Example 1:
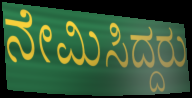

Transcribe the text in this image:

ನೇಮಿಸಿದ್ದರು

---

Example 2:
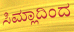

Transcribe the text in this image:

ಸಿಮ್ಲಾದಿಂದ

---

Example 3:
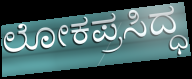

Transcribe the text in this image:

ಲೋಕಪ್ರಸಿದ್ಧ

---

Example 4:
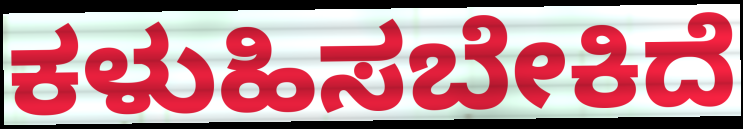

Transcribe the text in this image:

ಕಳುಹಿಸಬೇಕಿದೆ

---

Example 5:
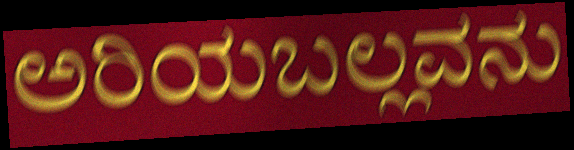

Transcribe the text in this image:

ಅರಿಯಬಲ್ಲವನು